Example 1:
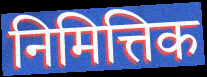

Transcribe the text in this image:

निमित्तिक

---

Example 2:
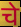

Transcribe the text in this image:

चे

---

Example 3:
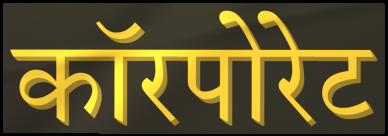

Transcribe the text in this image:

कॉरपोरेट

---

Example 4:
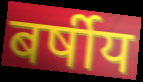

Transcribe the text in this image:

बर्षीय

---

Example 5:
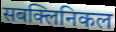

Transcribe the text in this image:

सबक्लिनिकल